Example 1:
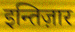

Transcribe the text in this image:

इन्तिज़ार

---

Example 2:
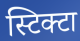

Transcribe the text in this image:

स्टिक्टा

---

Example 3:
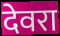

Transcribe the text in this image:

देवरा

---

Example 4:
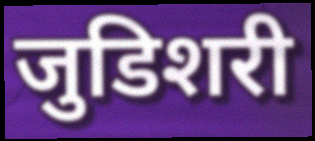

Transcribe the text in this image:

जुडिशरी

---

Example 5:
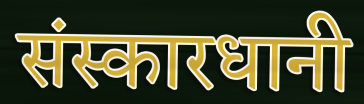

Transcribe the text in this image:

संस्कारधानी